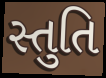
સ્તુતિ